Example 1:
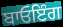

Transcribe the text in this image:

ਬਾਓਇੰਗ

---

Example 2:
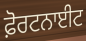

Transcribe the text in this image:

ਫ਼ੋਰਟਨਾਈਟ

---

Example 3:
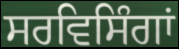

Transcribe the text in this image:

ਸਰਵਿਸਿੰਗਾਂ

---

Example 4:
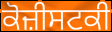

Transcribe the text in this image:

ਕੋਜ਼ੀਸਟਕੀ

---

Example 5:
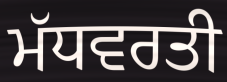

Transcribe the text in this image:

ਮੱਧਵਰਤੀ